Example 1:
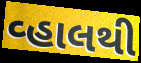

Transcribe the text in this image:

વ્હાલથી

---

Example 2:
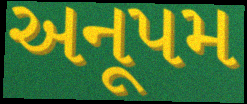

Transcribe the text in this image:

અનૂપમ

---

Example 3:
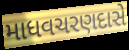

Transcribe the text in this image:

માધવચરણદાસે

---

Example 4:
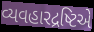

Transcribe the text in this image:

વ્યવહારદ્રષ્ટિએ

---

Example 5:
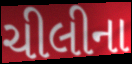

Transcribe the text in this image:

ચીલીના